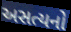
અસત્યનો